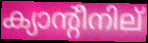
ക്യാന്റീനില്